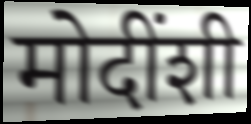
मोदींशी